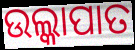
ଉଲ୍କାପାତ